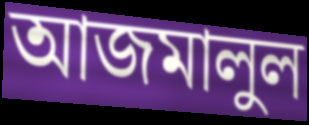
আজমালুল